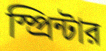
স্প্রিন্টার